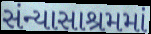
સંન્યાસાશ્રમમાં